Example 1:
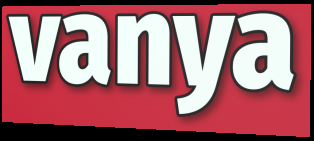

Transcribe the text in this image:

vanya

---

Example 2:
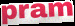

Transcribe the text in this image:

pram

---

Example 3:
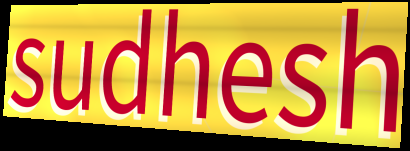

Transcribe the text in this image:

sudhesh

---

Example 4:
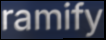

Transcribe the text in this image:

ramify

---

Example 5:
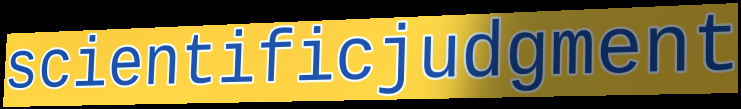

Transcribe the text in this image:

scientificjudgment